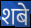
शबे